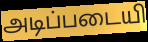
அடிப்படையி